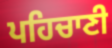
ਪਹਿਚਾਣੀ